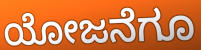
ಯೋಜನೆಗೂ